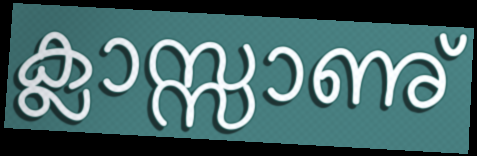
ക്ലാസ്സാണു്